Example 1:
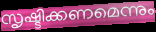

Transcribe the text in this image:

സൃഷ്ടിക്കണമെന്നും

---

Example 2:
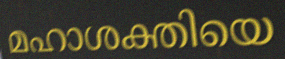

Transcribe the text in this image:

മഹാശക്തിയെ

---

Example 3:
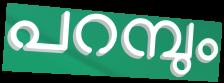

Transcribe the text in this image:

പറമ്പും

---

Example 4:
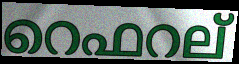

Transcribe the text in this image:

റെഫറല്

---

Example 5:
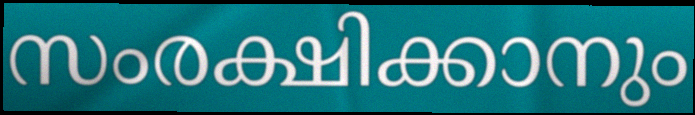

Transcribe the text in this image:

സംരക്ഷിക്കാനും